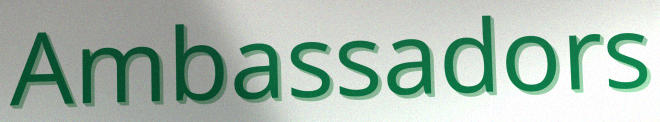
Ambassadors